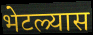
भेटल्यास